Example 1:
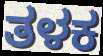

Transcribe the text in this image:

ತಳಕ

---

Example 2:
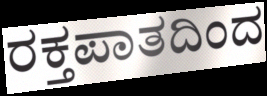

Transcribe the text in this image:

ರಕ್ತಪಾತದಿಂದ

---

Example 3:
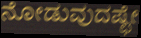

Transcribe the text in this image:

ನೋಡುವುದಷ್ಟೇ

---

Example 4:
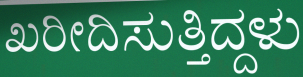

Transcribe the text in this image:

ಖರೀದಿಸುತ್ತಿದ್ದಳು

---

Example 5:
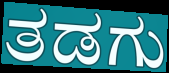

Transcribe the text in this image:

ತಡಗು